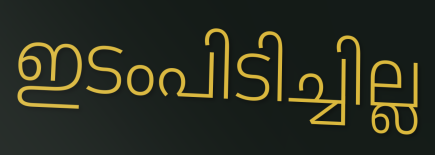
ഇടംപിടിച്ചില്ല